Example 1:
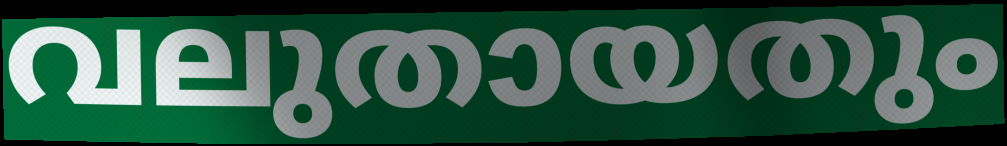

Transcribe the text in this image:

വലുതായതും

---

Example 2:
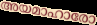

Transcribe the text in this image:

അയമാഹാരോ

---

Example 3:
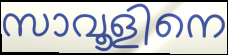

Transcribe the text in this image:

സാവൂളിനെ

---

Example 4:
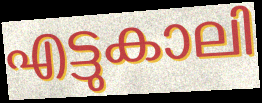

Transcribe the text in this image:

എട്ടുകാലി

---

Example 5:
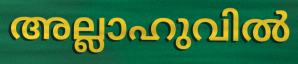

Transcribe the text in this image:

അല്ലാഹുവിൽ